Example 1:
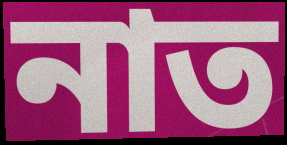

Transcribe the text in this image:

নাত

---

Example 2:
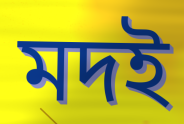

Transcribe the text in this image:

মদই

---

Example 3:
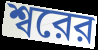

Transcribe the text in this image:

শ্বরের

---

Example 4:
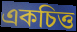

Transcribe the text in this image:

একচিত্ত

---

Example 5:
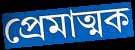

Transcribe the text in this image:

প্রেমাত্মক